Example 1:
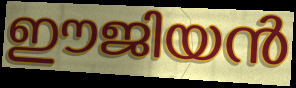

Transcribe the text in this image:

ഈജിയൻ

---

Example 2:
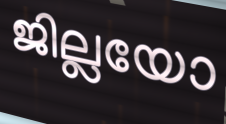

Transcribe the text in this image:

ജില്ലയോ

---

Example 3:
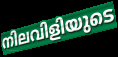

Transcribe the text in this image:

നിലവിളിയുടെ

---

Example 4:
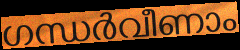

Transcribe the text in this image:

ഗന്ധർവീണാം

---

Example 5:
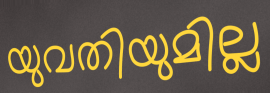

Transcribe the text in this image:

യുവതിയുമില്ല